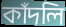
কাঁদলি